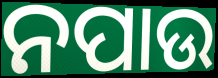
ନପାଉ